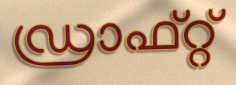
ഡ്രാഫ്റ്റ്